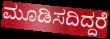
ಮೂಡಿಸದಿದ್ದರೆ